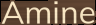
Amine